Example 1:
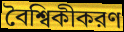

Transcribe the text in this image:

বৈশ্বিকীকরণ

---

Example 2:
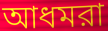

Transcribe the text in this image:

আধমরা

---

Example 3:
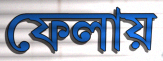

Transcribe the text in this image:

ফেলায়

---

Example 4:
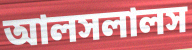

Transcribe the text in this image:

আলসলালস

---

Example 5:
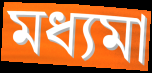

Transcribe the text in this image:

মধ্যমা